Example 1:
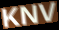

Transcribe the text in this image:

KNV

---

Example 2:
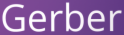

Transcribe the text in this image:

Gerber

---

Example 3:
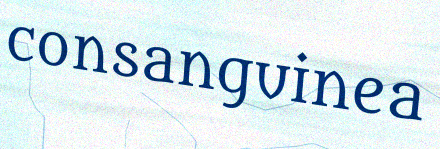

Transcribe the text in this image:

consanguinea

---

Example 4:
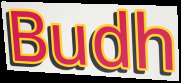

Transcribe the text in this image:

Budh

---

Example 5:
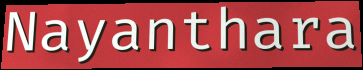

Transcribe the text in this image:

Nayanthara